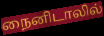
நைனிடாலில்